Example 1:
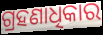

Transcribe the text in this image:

ଗ୍ରହଣାଧିକାର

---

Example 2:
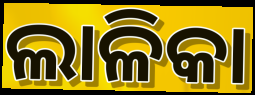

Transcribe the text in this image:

ଲାଳିକା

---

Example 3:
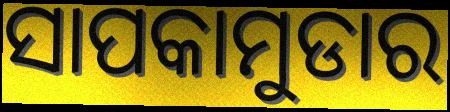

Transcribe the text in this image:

ସାପକାମୁଡାର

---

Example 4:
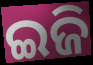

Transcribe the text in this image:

ଇଜି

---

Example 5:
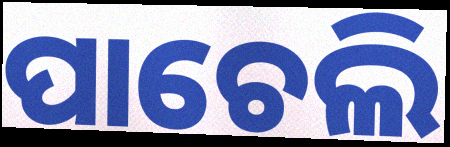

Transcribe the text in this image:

ପାଚେଲି